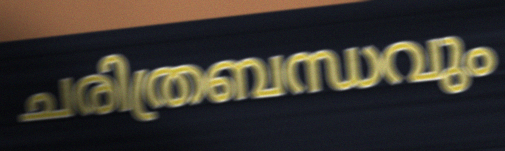
ചരിത്രബന്ധവും